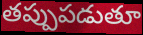
తప్పుపడుతూ